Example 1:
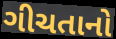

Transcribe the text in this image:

ગીચતાનો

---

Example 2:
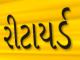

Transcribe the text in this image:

રીટાયર્ડ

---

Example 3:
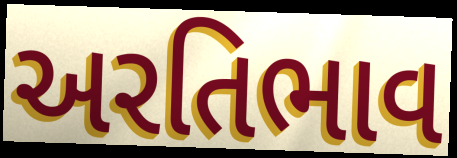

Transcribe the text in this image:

અરતિભાવ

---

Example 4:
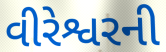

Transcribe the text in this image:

વીરેશ્વરની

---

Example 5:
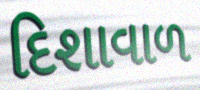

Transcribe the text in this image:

દિશાવાળ